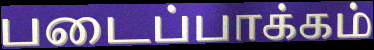
படைப்பாக்கம்